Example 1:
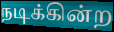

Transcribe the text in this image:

நடிக்கின்ற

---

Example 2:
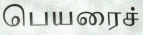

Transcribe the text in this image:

பெயரைச்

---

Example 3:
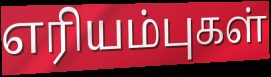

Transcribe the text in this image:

எரியம்புகள்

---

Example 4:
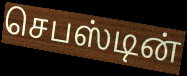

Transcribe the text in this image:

செபஸ்டின்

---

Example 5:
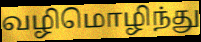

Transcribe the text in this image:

வழிமொழிந்து